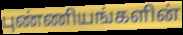
புண்ணியங்களின்